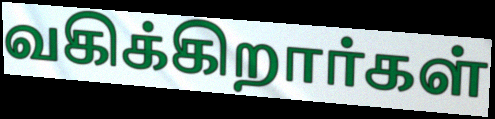
வகிக்கிறார்கள்